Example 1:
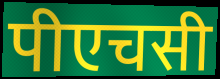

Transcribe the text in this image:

पीएचसी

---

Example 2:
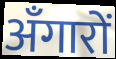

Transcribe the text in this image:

अँगारों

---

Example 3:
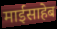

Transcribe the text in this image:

माईसाहेब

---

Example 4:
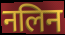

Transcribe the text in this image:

नलिन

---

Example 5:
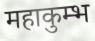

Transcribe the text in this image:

महाकुम्भ